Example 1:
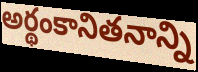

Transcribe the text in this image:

అర్థంకానితనాన్ని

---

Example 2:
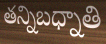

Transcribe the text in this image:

తన్నిబధ్నాతి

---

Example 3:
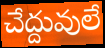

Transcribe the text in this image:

చేద్దువులే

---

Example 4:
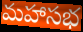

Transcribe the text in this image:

మహాసభ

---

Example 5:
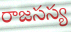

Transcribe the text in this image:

రాజసస్య